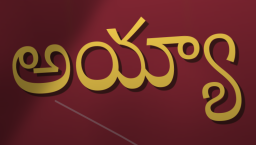
అయ్యా